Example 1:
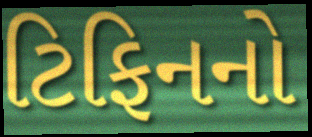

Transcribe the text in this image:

ટિફિનનો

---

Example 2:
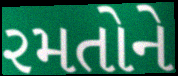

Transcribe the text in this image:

રમતોને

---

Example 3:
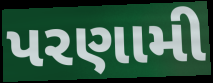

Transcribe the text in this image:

પરણામી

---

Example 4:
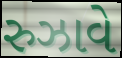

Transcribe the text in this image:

રુઝાવે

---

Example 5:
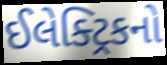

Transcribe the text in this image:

ઈલેક્ટ્રિકનો